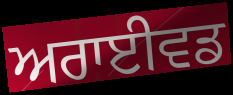
ਅਰਾਈਵਡ